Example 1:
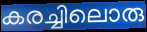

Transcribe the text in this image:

കരച്ചിലൊരു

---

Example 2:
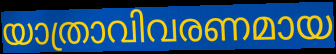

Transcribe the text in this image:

യാത്രാവിവരണമായ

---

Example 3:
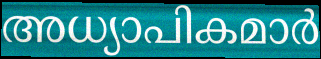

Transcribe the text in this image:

അധ്യാപികമാർ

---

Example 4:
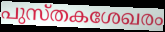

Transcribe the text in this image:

പുസ്തകശേഖരം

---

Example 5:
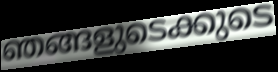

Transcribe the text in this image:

ഞങ്ങളുടെക്കുടെ